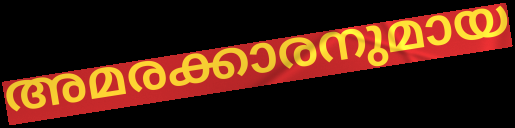
അമരക്കാരനുമായ